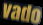
vado